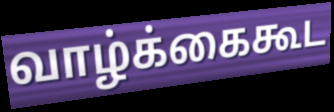
வாழ்க்கைகூட